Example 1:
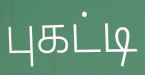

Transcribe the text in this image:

புகட்டி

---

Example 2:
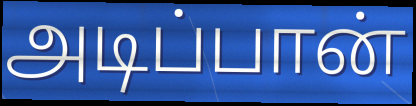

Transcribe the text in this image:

அடிப்பான்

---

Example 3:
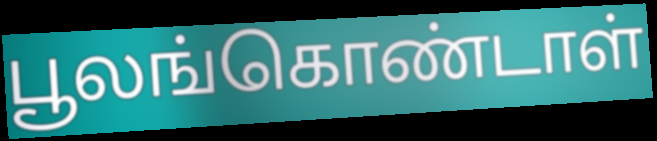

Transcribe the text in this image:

பூலங்கொண்டாள்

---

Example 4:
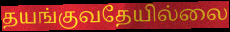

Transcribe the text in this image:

தயங்குவதேயில்லை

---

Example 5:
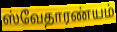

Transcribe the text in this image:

ஸ்வேதாரண்யம்